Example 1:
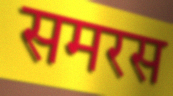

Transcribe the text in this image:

समरस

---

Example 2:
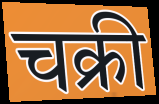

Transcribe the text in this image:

चक्री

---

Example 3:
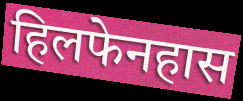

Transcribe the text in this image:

हिलफेनहास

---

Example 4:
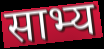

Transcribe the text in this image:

साभ्य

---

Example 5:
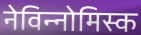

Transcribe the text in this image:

नेविन्नोमिस्क